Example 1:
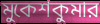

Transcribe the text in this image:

মুকেশকুমার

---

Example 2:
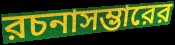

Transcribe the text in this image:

রচনাসম্ভারের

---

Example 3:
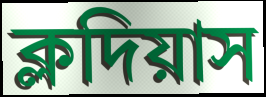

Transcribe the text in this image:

ক্লদিয়াস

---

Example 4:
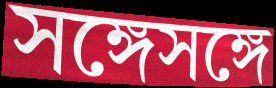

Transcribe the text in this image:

সঙ্গেসঙ্গে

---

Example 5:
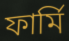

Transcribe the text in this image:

ফার্মি